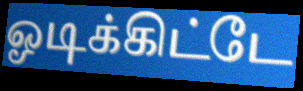
ஓடிக்கிட்டே